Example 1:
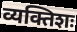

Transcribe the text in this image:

व्यक्तिशः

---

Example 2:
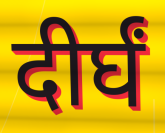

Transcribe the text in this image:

दीर्घं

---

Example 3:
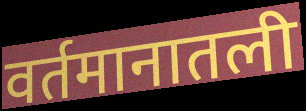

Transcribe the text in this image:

वर्तमानातली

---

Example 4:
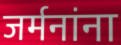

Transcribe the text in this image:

जर्मनांना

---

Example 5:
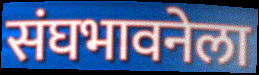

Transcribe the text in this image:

संघभावनेला